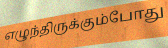
எழுந்திருக்கும்போது